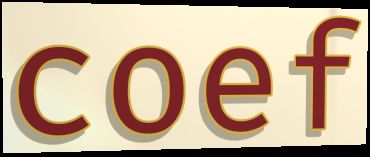
coef